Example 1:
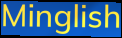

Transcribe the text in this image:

Minglish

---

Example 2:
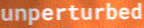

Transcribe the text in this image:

unperturbed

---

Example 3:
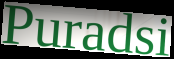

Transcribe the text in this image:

Puradsi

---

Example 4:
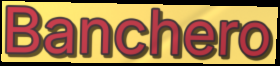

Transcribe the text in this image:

Banchero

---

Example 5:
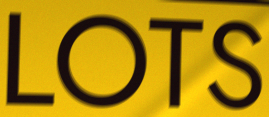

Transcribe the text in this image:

LOTS